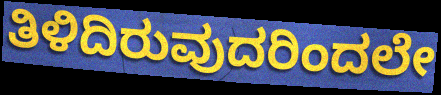
ತಿಳಿದಿರುವುದರಿಂದಲೇ